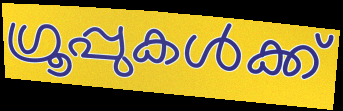
ഗ്രൂപ്പുകൾക്ക്